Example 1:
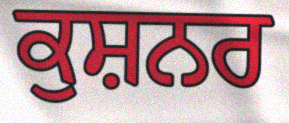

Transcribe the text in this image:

ਕੁਸ਼ਨਰ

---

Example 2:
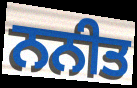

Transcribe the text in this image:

ਨਨੀਤ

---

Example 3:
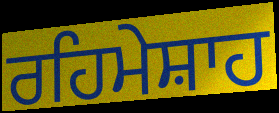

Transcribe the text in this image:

ਰਹਿਮੇਸ਼ਾਹ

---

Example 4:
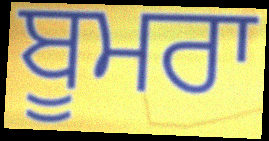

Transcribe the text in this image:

ਬੂਮਰਾ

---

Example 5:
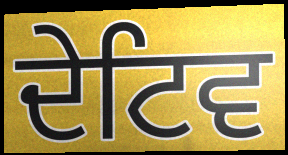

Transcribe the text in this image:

ਦੇਟਿਵ